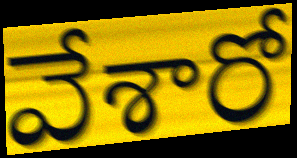
వేశారో